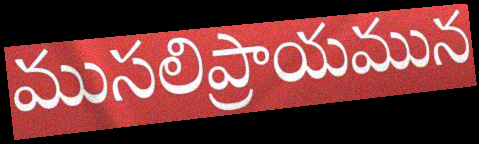
ముసలిప్రాయమున